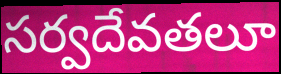
సర్వదేవతలూ